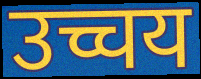
उच्चय